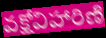
వక్షోవిహారిణి